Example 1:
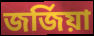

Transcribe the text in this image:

জৰ্জিয়া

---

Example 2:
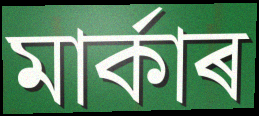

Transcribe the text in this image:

মাৰ্কাৰ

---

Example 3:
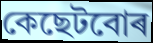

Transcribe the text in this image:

কেছেটবোৰ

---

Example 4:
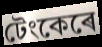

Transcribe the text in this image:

টেংকেৰে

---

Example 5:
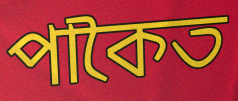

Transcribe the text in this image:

পাকৈত